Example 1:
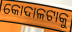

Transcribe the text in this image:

କୋଦାଳଟାକୁ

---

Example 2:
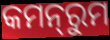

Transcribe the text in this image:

କମନ୍‌ରୁମ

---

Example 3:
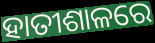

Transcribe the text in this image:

ହାତୀଶାଳରେ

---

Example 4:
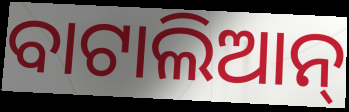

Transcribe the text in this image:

ବାଟାଲିଆନ୍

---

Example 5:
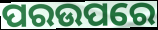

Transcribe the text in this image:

ପରଉପରେ